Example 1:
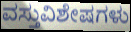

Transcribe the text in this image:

ವಸ್ತುವಿಶೇಷಗಳು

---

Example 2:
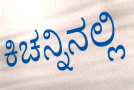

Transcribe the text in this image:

ಕಿಚನ್ನಿನಲ್ಲಿ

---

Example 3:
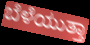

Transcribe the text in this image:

ಬೆಳೆಯುತ್ತಾ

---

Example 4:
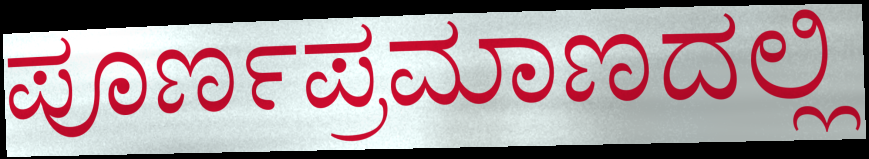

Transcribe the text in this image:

ಪೂರ್ಣಪ್ರಮಾಣದಲ್ಲಿ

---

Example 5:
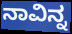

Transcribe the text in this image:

ನಾವಿನ್ನ